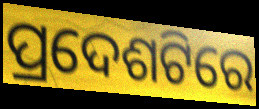
ପ୍ରଦେଶଟିରେ